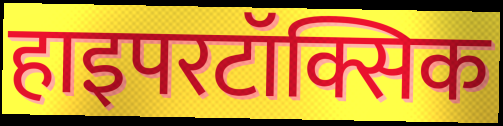
हाइपरटॉक्सिक